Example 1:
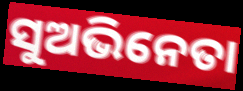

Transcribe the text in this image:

ସୁଅଭିନେତା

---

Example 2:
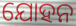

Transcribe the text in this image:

ଯୋହନ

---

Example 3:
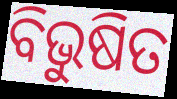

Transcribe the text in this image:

ବିଭୁଷିତ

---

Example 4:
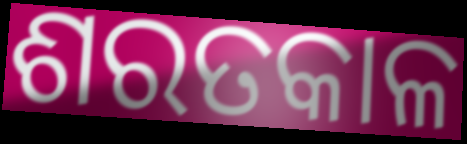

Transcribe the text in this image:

ଶରତକାଳ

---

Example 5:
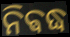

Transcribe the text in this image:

ନିଵଦ୍ଧ